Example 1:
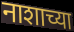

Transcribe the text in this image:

नाशाच्या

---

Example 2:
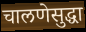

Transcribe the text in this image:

चालणेसुद्धा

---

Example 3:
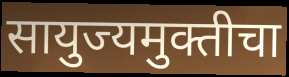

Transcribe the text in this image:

सायुज्यमुक्तीचा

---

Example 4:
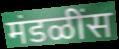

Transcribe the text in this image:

मंडळींस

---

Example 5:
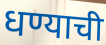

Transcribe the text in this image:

धण्याची